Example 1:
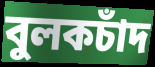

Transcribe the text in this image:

বুলকচাঁদ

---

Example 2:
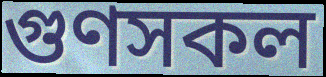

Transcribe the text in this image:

গুণসকল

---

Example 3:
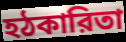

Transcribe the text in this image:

হঠকারিতা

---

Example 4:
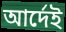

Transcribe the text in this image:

আর্দেই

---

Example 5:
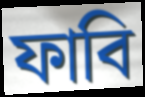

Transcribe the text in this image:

ফাবি